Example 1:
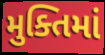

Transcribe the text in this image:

મુક્તિમાં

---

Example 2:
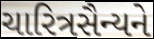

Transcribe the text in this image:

ચારિત્રસૈન્યને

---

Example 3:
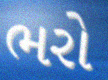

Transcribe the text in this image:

ભરો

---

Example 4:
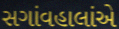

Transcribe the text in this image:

સગાંવહાલાંએ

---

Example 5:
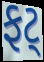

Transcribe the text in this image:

ફટ્